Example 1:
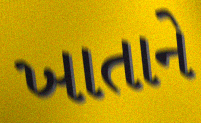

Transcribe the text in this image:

ખાતાને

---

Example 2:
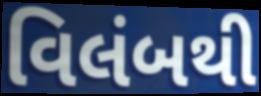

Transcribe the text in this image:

વિલંબથી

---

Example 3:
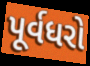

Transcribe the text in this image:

પૂર્વધરો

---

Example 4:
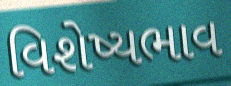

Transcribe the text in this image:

વિશેષ્યભાવ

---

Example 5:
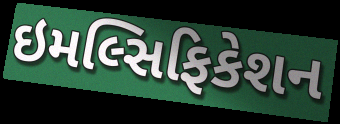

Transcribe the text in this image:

ઇમલ્સિફિકેશન